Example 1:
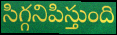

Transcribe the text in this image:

సిగ్గనిపిస్తుంది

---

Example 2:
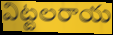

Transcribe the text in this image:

విట్టలరాయ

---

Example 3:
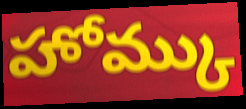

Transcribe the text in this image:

హోమ్కు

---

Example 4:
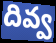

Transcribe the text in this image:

దివ్వ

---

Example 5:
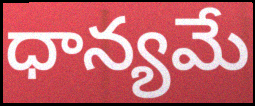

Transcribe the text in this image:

ధాన్యమే